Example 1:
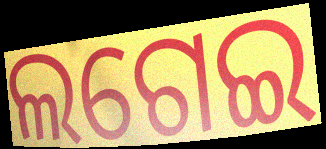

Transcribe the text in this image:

ଲଗେଇ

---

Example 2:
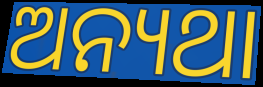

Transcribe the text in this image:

ଅନ୍ୟଥା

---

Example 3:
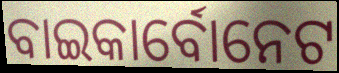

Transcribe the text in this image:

ବାଇକାର୍ବୋନେଟ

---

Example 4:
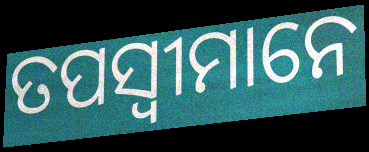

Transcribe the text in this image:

ତପସ୍ୱୀମାନେ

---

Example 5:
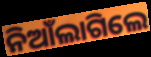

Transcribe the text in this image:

ନିଆଁଲାଗିଲେ